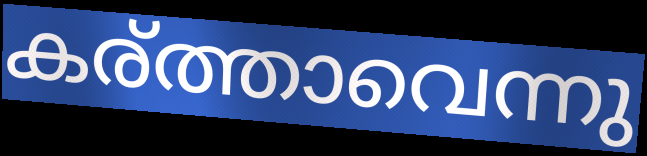
കര്ത്താവെന്നു